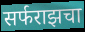
सर्फराझचा